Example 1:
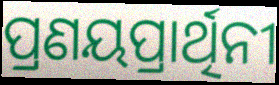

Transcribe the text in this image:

ପ୍ରଣୟପ୍ରାର୍ଥିନୀ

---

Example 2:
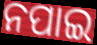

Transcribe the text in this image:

ନପାଇ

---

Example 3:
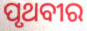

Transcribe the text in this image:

ପୃଥବୀର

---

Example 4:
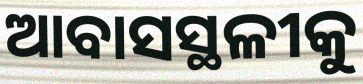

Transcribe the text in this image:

ଆବାସସ୍ଥଳୀକୁ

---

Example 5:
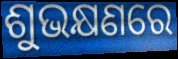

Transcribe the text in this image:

ଶୁଭକ୍ଷଣରେ